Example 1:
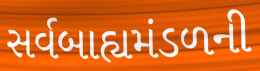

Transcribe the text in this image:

સર્વબાહ્યમંડળની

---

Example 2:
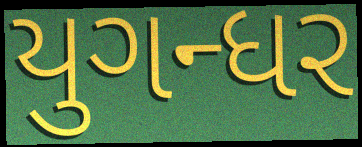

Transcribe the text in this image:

યુગન્ધર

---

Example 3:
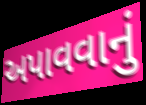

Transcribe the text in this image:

અપાવવાનું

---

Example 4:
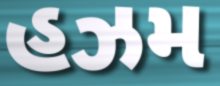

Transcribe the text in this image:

હઝમ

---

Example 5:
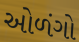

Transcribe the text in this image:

ઓળંગો